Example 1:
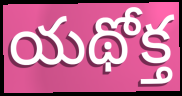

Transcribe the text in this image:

యథోక్త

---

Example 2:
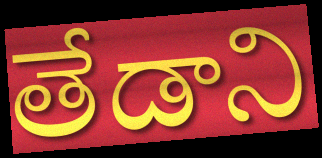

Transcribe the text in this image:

తేడాని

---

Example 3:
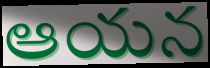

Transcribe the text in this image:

ఆయన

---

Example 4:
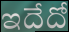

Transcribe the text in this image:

ఇదేదో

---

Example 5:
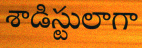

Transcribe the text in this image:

శాడిస్టులాగా